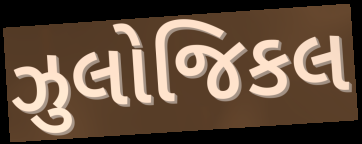
ઝુલોજિકલ